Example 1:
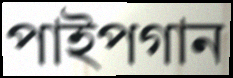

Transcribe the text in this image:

পাইপগান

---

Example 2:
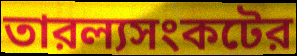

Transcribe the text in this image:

তারল্যসংকটের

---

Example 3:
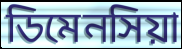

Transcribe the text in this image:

ডিমেনসিয়া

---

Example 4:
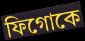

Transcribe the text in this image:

ফিগোকে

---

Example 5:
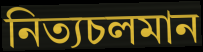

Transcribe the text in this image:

নিত্যচলমান